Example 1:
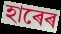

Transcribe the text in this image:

হাৰেৰ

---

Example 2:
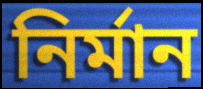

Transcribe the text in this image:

নিৰ্মান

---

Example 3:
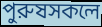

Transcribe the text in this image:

পুৰুষসকলে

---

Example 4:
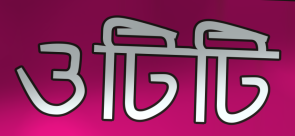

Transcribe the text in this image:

ওটিটি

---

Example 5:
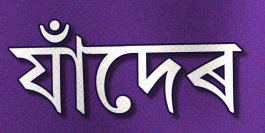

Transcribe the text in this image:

যাঁদেৰ